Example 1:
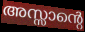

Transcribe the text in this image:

അസ്സാന്റെ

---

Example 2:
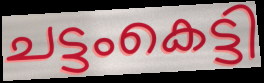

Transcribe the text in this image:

ചട്ടംകെട്ടി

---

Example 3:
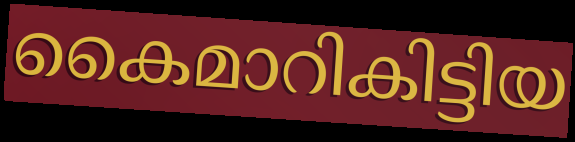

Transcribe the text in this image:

കൈമാറികിട്ടിയ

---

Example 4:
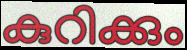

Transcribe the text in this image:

കുറിക്കും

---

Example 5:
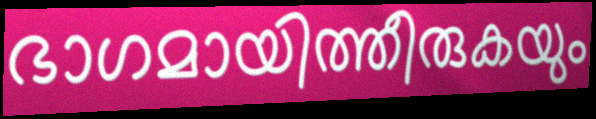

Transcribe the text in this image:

ഭാഗമായിത്തീരുകയും